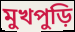
মুখপুড়ি